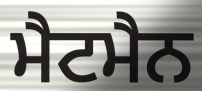
ਮੈਟਮੈਨ